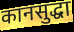
कानसुद्धा